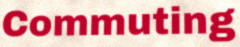
Commuting